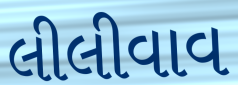
લીલીવાવ